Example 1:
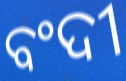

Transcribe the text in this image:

ବଂଦୀ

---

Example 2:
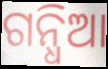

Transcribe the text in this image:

ଗନ୍ଧିଆ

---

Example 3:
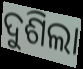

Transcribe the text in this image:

ଦୁଶିଲା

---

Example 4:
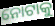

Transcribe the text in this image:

ନୋଟାକୁ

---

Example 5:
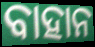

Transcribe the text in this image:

ବାହାନ